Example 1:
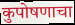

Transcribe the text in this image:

कुपोषणाचा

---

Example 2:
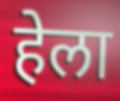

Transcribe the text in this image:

हेला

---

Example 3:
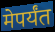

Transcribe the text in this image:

मेपर्यंत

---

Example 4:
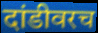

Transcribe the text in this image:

दांडीवरच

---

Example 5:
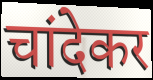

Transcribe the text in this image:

चांदेकर